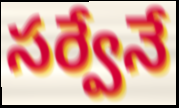
సర్వేనే